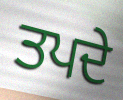
ਤਪਦੇ